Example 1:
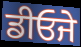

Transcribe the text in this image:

ਡੀਓਜੇ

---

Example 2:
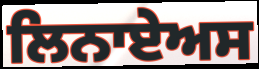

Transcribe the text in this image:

ਲਿਨਾਏਅਸ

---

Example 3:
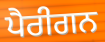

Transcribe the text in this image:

ਪੈਰੀਗਨ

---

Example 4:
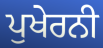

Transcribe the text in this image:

ਪੁਖੇਰਨੀ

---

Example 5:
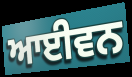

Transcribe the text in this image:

ਆਈਵਨ